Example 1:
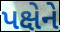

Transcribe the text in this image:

પક્ષેને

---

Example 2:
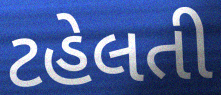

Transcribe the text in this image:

ટહેલતી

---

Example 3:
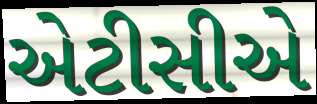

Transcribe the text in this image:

એટીસીએ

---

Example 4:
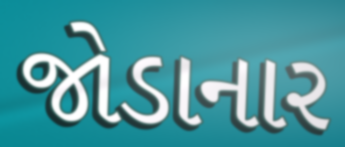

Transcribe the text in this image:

જોડાનાર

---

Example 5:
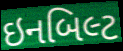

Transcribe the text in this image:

ઇનબિલ્ટ